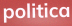
politica